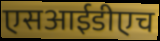
एसआईडीएच